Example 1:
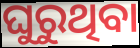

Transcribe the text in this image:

ଘୁରୁଥିବା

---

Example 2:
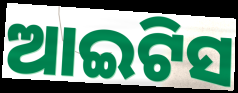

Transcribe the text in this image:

ଆଇଟିସ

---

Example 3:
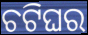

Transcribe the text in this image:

ଚଟିଘର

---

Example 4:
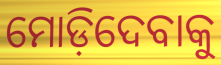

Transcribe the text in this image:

ମୋଡ଼ିଦେବାକୁ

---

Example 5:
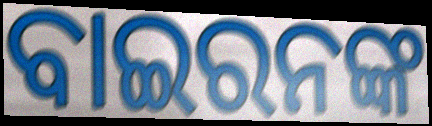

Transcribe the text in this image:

ବାଇରନଙ୍କ